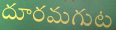
దూరమగుట